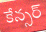
కేన్సర్